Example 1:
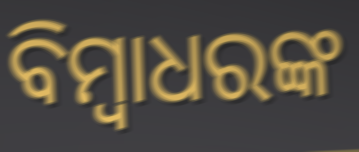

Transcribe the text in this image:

ବିମ୍ବାଧରଙ୍କ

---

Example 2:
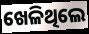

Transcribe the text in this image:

ଖେଳିଥିଲେ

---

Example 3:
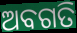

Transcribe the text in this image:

ଅବଗତି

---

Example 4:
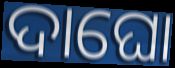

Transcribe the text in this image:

ଦାଘୋ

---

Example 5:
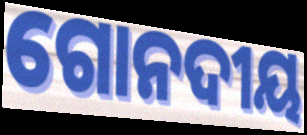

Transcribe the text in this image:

ଗୋନଦୀୟ